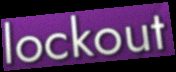
lockout